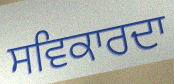
ਸਵਿਕਾਰਦਾ